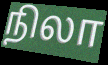
நிலா